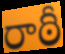
రాఠీ